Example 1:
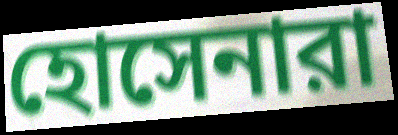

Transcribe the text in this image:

হোসেনারা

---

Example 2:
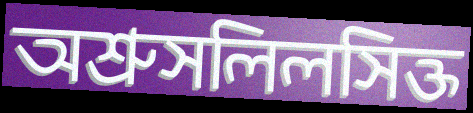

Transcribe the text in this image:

অশ্রুসলিলসিক্ত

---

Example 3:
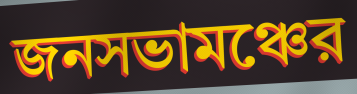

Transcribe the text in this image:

জনসভামঞ্চের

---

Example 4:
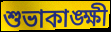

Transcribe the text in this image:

শুভাকাঙ্ক্ষী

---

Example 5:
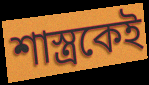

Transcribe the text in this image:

শাস্ত্রকেই